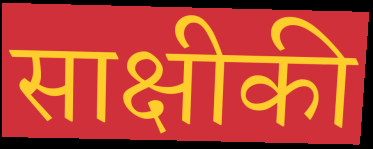
साक्षीकी